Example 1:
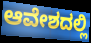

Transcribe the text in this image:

ಆವೇಶದಲ್ಲಿ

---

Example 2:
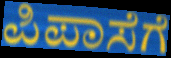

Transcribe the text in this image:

ಪಿಪಾಸೆಗೆ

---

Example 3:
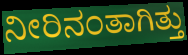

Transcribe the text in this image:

ನೀರಿನಂತಾಗಿತ್ತು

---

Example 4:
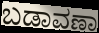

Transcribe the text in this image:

ಬಡಾವಣಾ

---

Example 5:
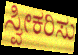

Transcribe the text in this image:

ಸ್ವೀಕರಿಸು